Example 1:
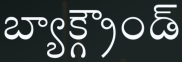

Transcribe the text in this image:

బ్యాక్గ్రౌండ్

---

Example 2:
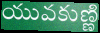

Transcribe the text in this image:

యువకుణ్ణి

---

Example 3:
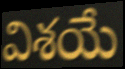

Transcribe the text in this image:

విశయే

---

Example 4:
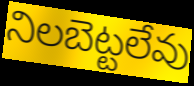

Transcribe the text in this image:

నిలబెట్టలేవు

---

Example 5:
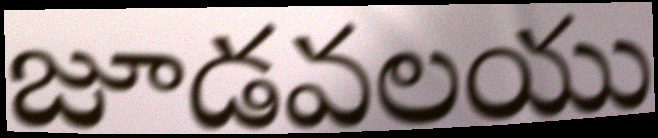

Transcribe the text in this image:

జూడవలయు